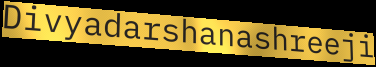
Divyadarshanashreeji